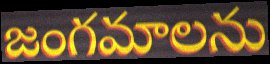
జంగమాలను